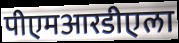
पीएमआरडीएला